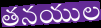
తనయుల